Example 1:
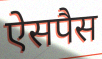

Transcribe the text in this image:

ऐसपैस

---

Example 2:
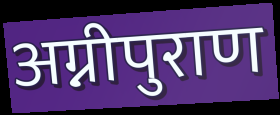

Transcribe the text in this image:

अग्नीपुराण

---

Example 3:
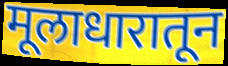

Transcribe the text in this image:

मूलाधारातून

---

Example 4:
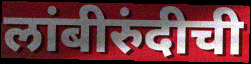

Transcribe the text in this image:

लांबीरुंदीची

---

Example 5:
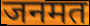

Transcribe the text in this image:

जनमत